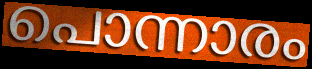
പൊന്നാരം